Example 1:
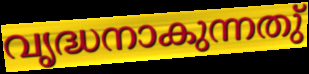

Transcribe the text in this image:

വൃദ്ധനാകുന്നതു്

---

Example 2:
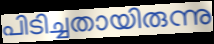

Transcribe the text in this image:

പിടിച്ചതായിരുന്നു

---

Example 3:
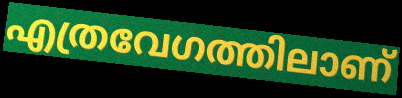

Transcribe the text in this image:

എത്രവേഗത്തിലാണ്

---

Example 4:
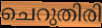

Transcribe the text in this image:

ചെറുതിരി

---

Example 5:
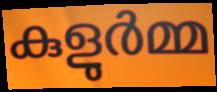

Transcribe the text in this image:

കുളുർമ്മ